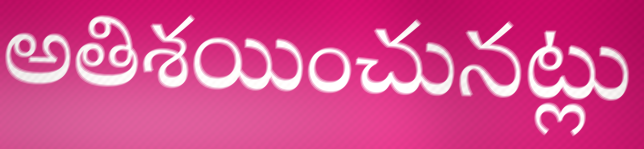
అతిశయించునట్లు